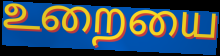
உறையை